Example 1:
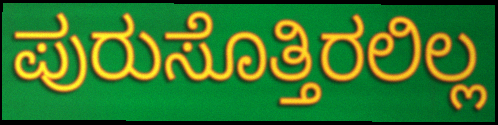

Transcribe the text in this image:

ಪುರುಸೊತ್ತಿರಲಿಲ್ಲ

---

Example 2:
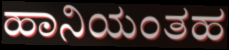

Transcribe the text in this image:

ಹಾನಿಯಂತಹ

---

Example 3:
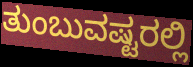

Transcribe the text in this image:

ತುಂಬುವಷ್ಟರಲ್ಲಿ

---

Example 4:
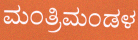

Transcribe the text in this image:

ಮಂತ್ರಿಮಂಡಳ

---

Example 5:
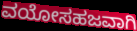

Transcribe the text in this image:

ವಯೋಸಹಜವಾಗಿ